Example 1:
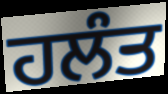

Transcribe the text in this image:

ਹਲੰਤ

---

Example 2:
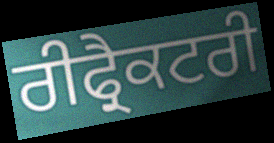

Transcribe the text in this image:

ਰੀਫ੍ਰੈਕਟਰੀ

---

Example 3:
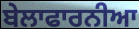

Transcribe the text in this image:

ਬੇਲਾਫਾਰਨੀਆ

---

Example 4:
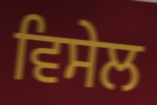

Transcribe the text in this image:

ਵਿਸੇਲ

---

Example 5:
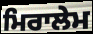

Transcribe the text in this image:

ਮਿਰਾਲੇਮ